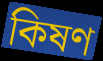
কিষণ